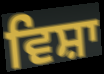
ਵਿਸ਼ਾ